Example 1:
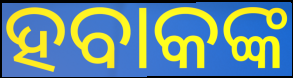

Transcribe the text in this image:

ହବାକଙ୍କ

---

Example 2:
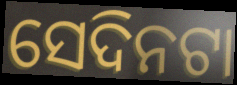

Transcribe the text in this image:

ସେଦିନଟା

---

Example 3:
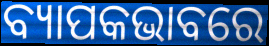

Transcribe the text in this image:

ବ୍ୟାପକଭାବରେ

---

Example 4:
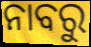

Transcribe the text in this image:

ନାବରୁ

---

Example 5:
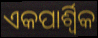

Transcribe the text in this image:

ଏକପାର୍ଶ୍ୱିକ